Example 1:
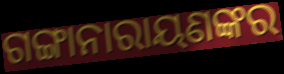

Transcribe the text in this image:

ଗଙ୍ଗାନାରାୟଣଙ୍କର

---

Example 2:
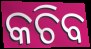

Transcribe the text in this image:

କଚିବ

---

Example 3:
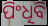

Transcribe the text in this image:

ପିଂଧିବି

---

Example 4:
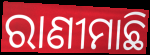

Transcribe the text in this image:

ରାଣୀମାଛି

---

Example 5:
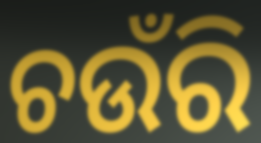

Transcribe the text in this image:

ଚଉଁରି